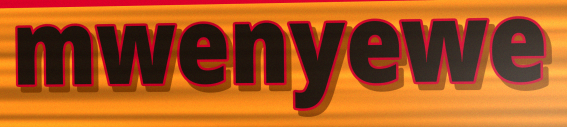
mwenyewe